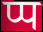
प्प